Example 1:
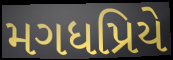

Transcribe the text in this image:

મગધપ્રિયે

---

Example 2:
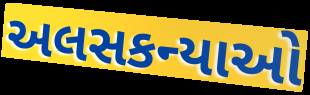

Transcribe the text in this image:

અલસકન્યાઓ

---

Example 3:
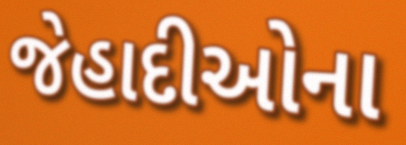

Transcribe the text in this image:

જેહાદીઓના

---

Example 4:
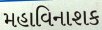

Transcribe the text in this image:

મહાવિનાશક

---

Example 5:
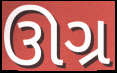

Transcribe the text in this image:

ઊગ્ર